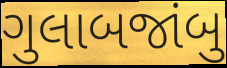
ગુલાબજાંબુ